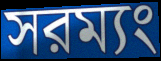
সরম্যং